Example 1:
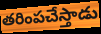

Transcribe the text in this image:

తరింపచేస్తాడు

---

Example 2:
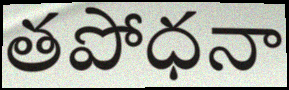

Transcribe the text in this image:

తపోధనా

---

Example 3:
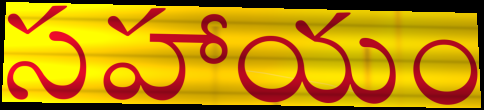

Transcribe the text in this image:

సహాయం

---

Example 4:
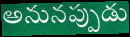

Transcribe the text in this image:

అనునప్పుడు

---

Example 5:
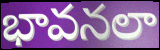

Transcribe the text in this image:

భావనలా